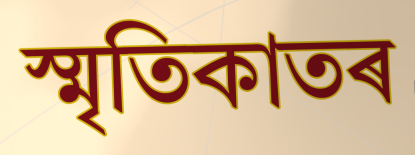
স্মৃতিকাতৰ